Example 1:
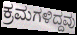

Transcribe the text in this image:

ಕ್ರಮಗಳಿದ್ದವು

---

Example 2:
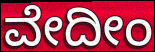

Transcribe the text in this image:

ವೇದೀಂ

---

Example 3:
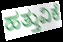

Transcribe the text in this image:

ಹತ್ತುವಿಕೆ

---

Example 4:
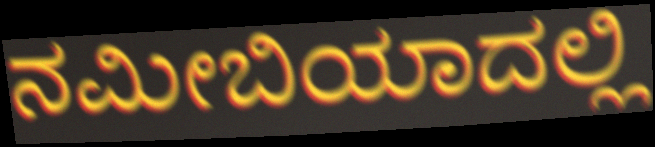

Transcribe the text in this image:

ನಮೀಬಿಯಾದಲ್ಲಿ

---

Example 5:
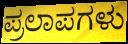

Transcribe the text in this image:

ಪ್ರಲಾಪಗಳು